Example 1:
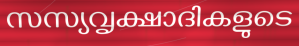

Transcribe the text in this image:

സസ്യവൃക്ഷാദികളുടെ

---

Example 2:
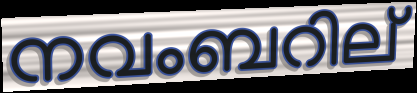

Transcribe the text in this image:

നവംബറില്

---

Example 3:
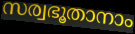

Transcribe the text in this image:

സര്വഭൂതാനാം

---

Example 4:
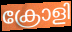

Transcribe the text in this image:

ക്രോളി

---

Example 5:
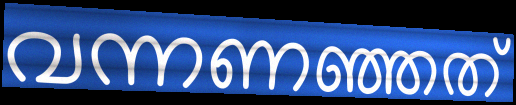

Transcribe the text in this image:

വന്നണഞ്ഞത്